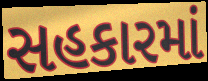
સહકારમાં